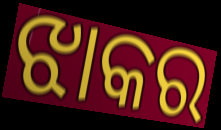
ଝାକର